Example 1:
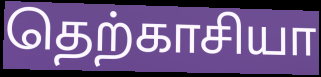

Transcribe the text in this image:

தெற்காசியா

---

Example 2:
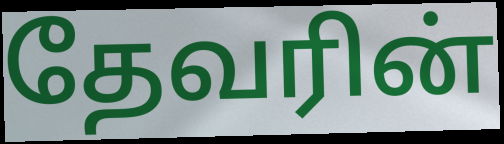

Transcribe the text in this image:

தேவரின்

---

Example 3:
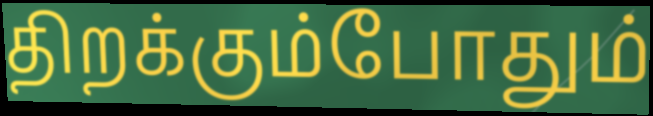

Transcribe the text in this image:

திறக்கும்போதும்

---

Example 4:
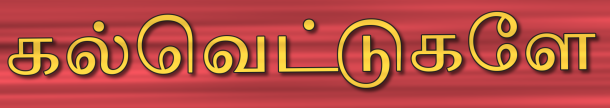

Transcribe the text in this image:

கல்வெட்டுகளே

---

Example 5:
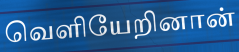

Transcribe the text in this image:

வெளியேறினான்